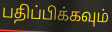
பதிப்பிக்கவும்